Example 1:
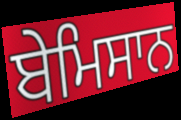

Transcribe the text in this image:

ਬੇਮਿਸਾਨ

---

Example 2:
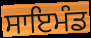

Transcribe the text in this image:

ਸਾਇਮੰਡ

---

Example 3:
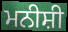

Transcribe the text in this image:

ਮਨੀਸ਼ੀ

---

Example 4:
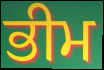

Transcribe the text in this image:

ਭੀਮ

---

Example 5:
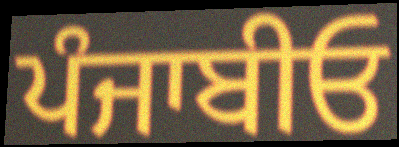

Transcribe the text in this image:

ਪੰਜਾਬੀਓ